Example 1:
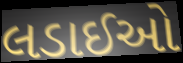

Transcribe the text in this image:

લડાઈઓ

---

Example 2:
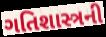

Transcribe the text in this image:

ગતિશાસ્ત્રની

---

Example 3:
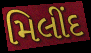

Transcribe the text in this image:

મિલીંદ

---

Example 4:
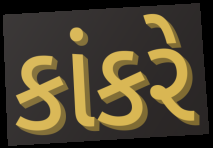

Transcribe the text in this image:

કાંકરે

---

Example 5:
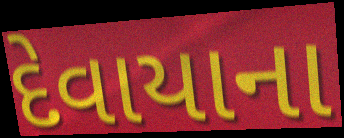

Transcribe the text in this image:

દેવાયાના